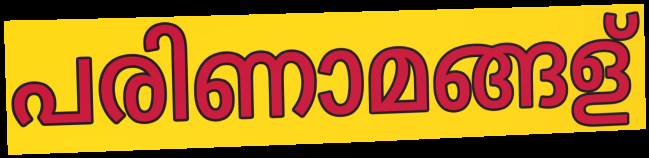
പരിണാമങ്ങള്